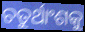
ଚତୁର୍ଥାଂଶକୁ